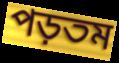
পড়তম